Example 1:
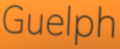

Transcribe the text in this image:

Guelph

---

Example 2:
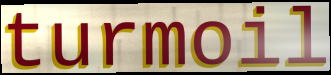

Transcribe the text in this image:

turmoil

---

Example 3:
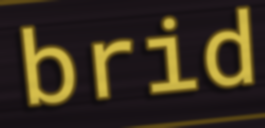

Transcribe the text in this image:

brid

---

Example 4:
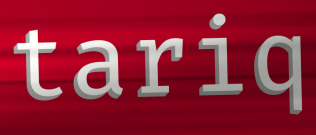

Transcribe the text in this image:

tariq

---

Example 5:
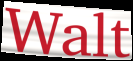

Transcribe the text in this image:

Walt